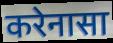
करेनासा